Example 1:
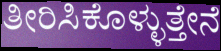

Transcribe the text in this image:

ತೀರಿಸಿಕೊಳ್ಳುತ್ತೇನೆ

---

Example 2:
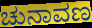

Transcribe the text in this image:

ಚುನಾವಣ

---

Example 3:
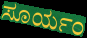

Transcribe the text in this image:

ಸೂರ್ಯಂ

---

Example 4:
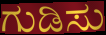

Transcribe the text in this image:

ಗುಡಿಸು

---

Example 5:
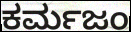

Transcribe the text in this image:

ಕರ್ಮಜಂ